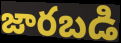
జారబడి